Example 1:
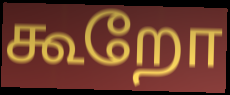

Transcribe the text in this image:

கூறோ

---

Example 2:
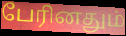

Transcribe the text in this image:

பேரினதும்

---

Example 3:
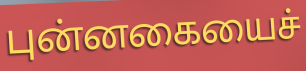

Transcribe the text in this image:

புன்னகையைச்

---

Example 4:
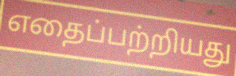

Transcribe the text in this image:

எதைப்பற்றியது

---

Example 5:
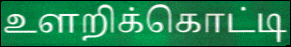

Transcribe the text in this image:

உளறிக்கொட்டி